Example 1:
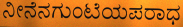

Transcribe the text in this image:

ನೀನೆನಗುಂಟೆಯಪರಾಧ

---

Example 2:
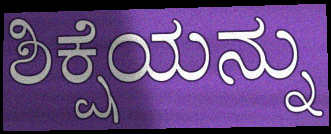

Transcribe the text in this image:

ಶಿಕ್ಷೆಯನ್ನು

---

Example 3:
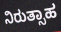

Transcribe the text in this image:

ನಿರುತ್ಸಾಹ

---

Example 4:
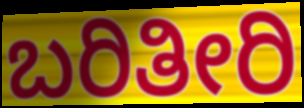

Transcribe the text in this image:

ಬರಿತೀರಿ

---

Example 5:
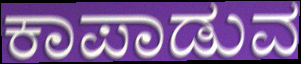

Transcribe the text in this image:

ಕಾಪಾಡುವ